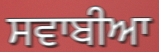
ਸਵਾਬੀਆ